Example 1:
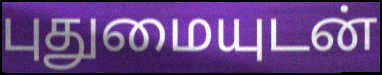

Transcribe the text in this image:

புதுமையுடன்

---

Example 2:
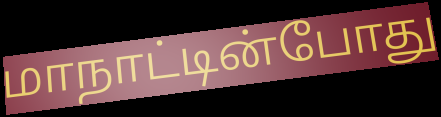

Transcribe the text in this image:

மாநாட்டின்போது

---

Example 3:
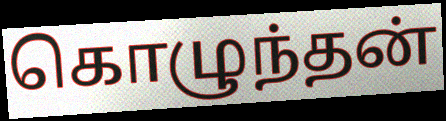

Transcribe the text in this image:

கொழுந்தன்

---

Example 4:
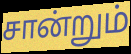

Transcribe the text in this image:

சான்றும்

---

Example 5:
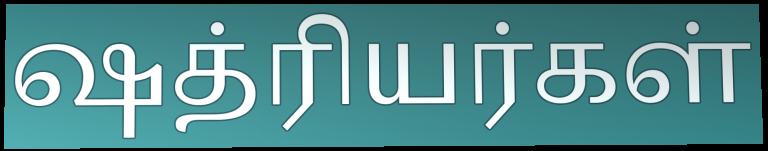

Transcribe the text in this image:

ஷத்ரியர்கள்